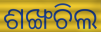
ଶଙ୍ଖଚିଲ